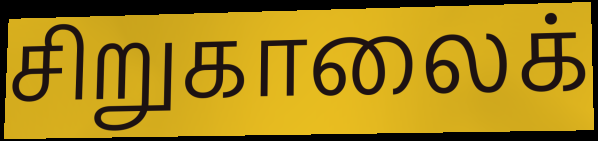
சிறுகாலைக்